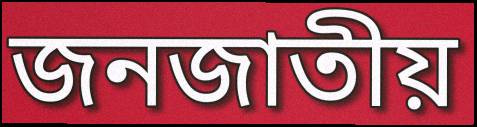
জনজাতীয়